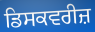
ਡਿਸਕਵਰੀਜ਼